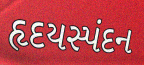
હૃદયસ્પંદન